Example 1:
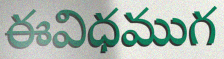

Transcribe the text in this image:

ఈవిధముగ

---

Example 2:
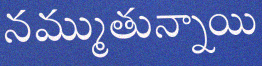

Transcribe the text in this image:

నమ్ముతున్నాయి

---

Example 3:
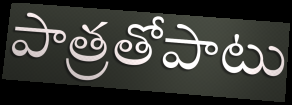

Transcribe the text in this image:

పాత్రతోపాటు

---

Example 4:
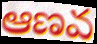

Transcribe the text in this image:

ఆణవ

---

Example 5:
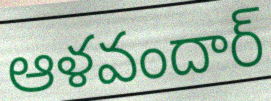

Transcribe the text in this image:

ఆళవందార్